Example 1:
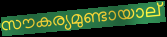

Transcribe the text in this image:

സൗകര്യമുണ്ടായാല്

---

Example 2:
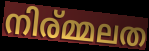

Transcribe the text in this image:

നിര്മ്മലത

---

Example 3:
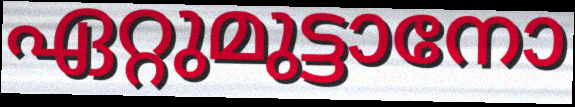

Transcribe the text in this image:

ഏറ്റുമുട്ടാനോ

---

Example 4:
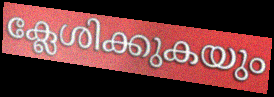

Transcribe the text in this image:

ക്ലേശിക്കുകയും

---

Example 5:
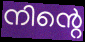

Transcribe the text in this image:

നിന്റെ